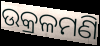
ଉକ୍ରଳମଣି